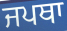
ਜਪਥਾ